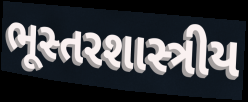
ભૂસ્તરશાસ્ત્રીય